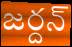
జర్దన్